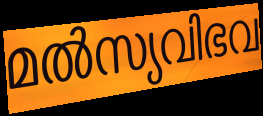
മൽസ്യവിഭവ